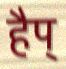
हैप्